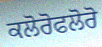
ਕਲੋਰੋਫਲੋਰੋ